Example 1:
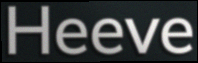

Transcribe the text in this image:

Heeve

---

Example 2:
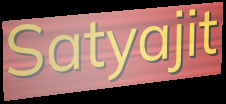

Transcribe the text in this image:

Satyajit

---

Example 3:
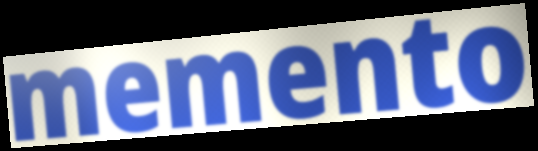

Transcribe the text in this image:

memento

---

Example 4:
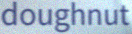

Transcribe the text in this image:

doughnut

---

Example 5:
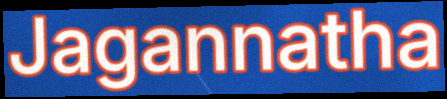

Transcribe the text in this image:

Jagannatha